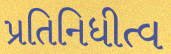
પ્રતિનિધીત્વ